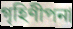
গৃহিণীপনা